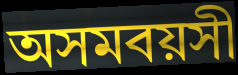
অসমবয়সী